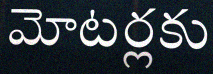
మోటర్లకు